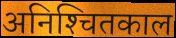
अनिश्‍चितकाल